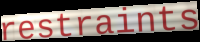
restraints